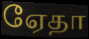
ஏேதா